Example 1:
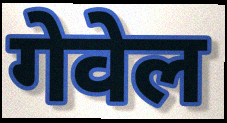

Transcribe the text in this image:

गेवेल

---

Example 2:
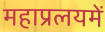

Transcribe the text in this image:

महाप्रलयमें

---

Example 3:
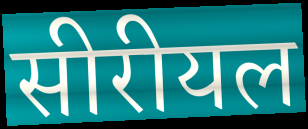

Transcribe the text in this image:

सीरीयल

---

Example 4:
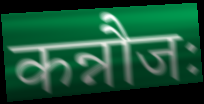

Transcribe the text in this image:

कन्नौजः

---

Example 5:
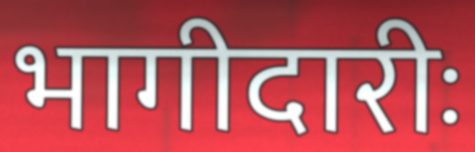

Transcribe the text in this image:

भागीदारीः